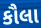
કૌલા